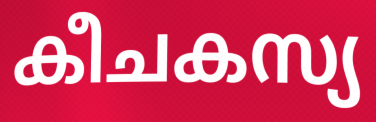
കീചകസ്യ